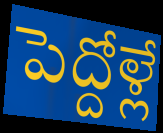
పెద్దోళ్లే